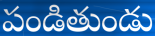
పండితుండు